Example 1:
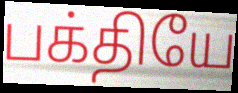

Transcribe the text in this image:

பக்தியே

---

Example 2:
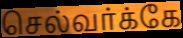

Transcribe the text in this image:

செல்வர்க்கே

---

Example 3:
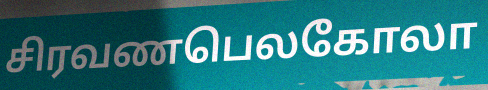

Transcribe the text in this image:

சிரவணபெலகோலா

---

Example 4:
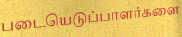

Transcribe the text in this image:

படையெடுப்பாளர்களை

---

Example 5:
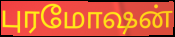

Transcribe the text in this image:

புரமோஷன்